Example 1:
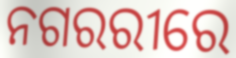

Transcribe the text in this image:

ନଗରରୀରେ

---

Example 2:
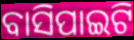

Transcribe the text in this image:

ବାସିପାଇଟି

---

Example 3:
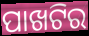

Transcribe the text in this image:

ପାଖଟିର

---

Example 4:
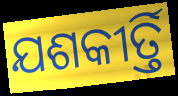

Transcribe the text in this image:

ଯଶକୀର୍ତ୍ତି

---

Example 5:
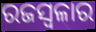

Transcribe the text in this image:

ରଜସ୍ୱଳାର